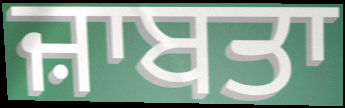
ਜ਼ਾਬਤਾ